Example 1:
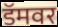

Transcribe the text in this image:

डॅमवर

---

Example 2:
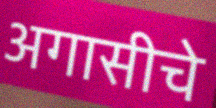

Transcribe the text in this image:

अगासीचे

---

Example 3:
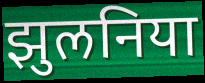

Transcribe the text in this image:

झुलनिया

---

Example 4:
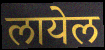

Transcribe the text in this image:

लायेल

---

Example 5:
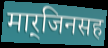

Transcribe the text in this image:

मार्जिनसह